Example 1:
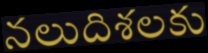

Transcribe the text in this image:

నలుదిశలకు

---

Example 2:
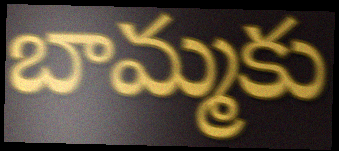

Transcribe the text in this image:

బామ్మకు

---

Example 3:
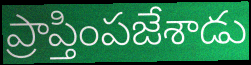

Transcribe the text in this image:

ప్రాప్తింపజేశాడు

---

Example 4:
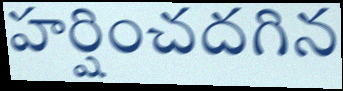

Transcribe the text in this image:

హర్షించదగిన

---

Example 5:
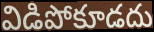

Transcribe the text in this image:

విడిపోకూడదు